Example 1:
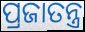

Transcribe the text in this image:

ପ୍ରଜାତନ୍ତ୍ର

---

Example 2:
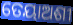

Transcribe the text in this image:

ତେୟାଅଶୀ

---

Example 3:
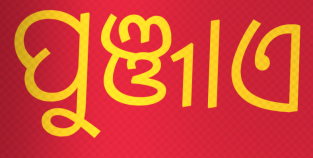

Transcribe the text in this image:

ପୁଞ୍ଜାଏ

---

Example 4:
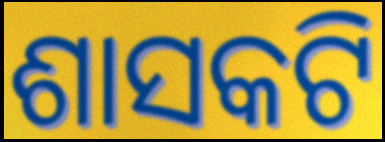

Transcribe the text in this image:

ଶାସକଟି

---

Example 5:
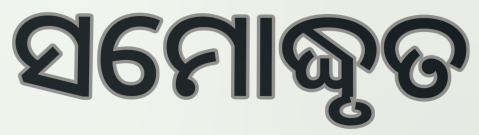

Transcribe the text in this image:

ସମୋଦ୍ଧୃତ